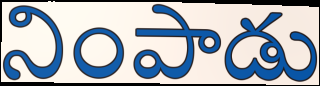
నింపాడు